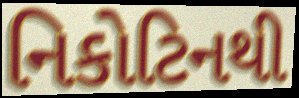
નિકોટિનથી